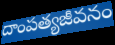
దాంపత్యజీవనం